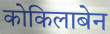
कोकिलाबेन